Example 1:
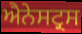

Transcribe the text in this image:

ਐਨੇਸਟ੍ਰਸ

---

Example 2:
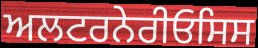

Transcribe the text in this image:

ਅਲਟਰਨੇਰੀਓਸਿਸ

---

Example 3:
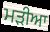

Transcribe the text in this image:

ਮਡ਼ੀਆ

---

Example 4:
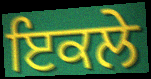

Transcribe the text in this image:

ਇਕਲੇ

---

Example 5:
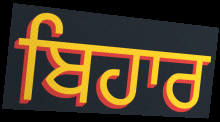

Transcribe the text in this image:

ਬਿਹਾਰ